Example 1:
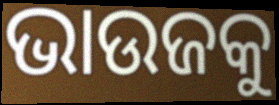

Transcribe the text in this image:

ଭାଉଜକୁ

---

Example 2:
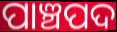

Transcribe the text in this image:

ପାଞ୍ଚପଦ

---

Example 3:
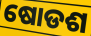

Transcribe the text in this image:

ଷୋଡଶ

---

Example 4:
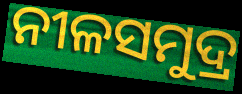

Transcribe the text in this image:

ନୀଳସମୁଦ୍ର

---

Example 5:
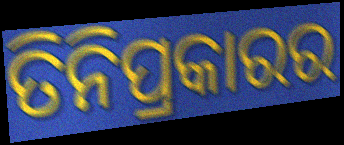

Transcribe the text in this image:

ତିନିପ୍ରକାରର